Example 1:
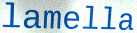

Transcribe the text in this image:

lamella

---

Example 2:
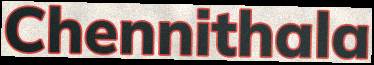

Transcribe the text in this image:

Chennithala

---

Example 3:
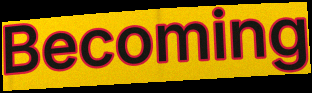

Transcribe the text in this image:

Becoming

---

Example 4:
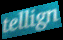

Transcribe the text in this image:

tellign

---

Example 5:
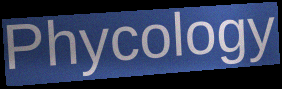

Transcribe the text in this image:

Phycology